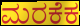
ಮರಕೆಕ